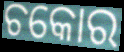
ଚକୋର